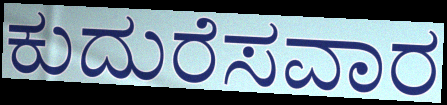
ಕುದುರೆಸವಾರ